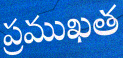
ప్రముఖత